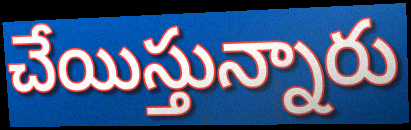
చేయిస్తున్నారు